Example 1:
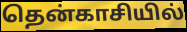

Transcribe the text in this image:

தென்காசியில்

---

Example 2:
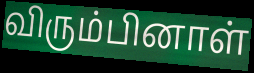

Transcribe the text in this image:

விரும்பினாள்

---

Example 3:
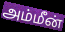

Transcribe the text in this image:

அம்மீன்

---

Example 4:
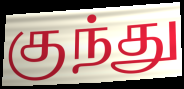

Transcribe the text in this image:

குந்து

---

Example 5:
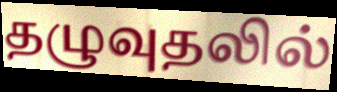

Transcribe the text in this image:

தழுவுதலில்